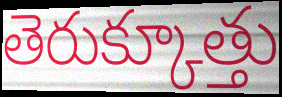
తెరుక్కూత్తు